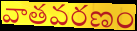
వాతవరణం